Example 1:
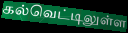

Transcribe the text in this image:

கல்வெட்டிலுள்ள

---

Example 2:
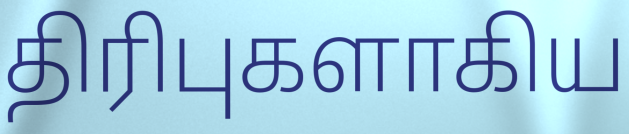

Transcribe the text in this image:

திரிபுகளாகிய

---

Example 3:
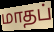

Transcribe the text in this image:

மாதப்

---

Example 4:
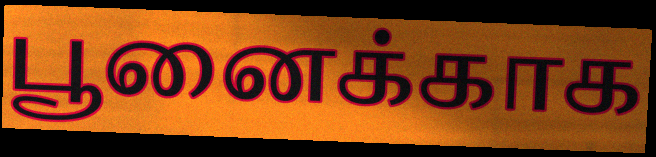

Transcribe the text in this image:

பூனைக்காக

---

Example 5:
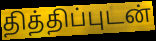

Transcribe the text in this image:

தித்திப்புடன்